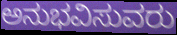
ಅನುಭವಿಸುವರು